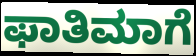
ಫಾತಿಮಾಗೆ